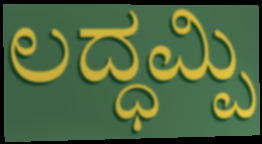
ಲದ್ಧಮ್ಪಿ